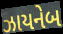
ઝાયનેબ